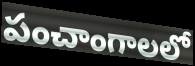
పంచాంగాలలో